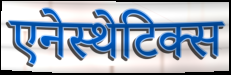
एनेस्थेटिक्स